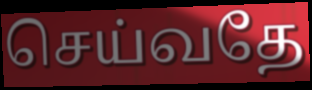
செய்வதே